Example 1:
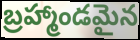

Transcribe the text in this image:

బ్రహ్మాండమైన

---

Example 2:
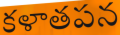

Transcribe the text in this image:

కళాతపన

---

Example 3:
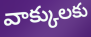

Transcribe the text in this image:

వాక్కులకు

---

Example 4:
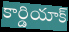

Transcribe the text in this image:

కార్డియాక్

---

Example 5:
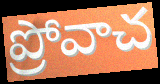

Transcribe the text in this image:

ప్రోవాచ